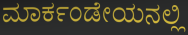
ಮಾರ್ಕಂಡೇಯನಲ್ಲಿ